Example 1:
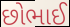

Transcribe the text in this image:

છોભાઈ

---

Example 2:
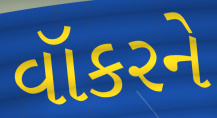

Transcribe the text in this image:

વૉકરને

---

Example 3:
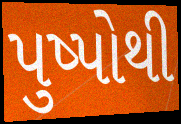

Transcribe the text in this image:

પુષ્પોથી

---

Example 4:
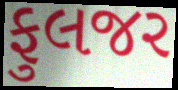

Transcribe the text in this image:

ફુલજર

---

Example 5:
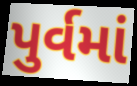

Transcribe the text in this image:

પુર્વમાં